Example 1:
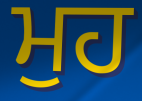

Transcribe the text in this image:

ਮੁਹ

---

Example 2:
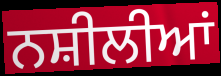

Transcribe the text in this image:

ਨਸ਼ੀਲੀਆਂ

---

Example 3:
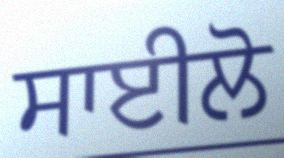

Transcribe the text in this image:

ਸਾਈਲੋ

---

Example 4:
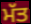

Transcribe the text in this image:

ਮੱਤ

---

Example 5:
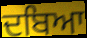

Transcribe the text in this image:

ਦਬਿਆ